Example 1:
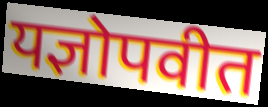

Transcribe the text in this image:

यज्ञोपवीत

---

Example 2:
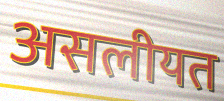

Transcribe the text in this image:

असलीयत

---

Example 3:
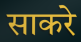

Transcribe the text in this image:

साकरे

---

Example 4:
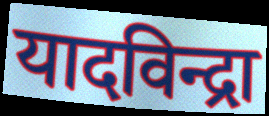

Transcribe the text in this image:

यादविन्द्रा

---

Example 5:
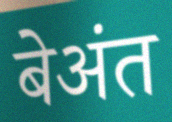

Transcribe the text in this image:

बेअंत